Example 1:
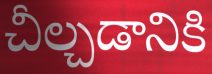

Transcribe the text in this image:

చీల్చడానికి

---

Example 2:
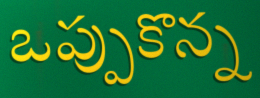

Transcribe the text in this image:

ఒప్పుకొన్న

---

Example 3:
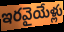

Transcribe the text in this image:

ఇరవైయేళ్లు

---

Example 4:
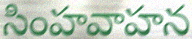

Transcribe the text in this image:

సింహవాహన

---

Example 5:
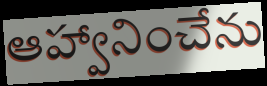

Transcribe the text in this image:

ఆహ్వానించేను